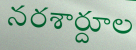
నరశార్దూల